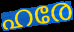
ഹരേ